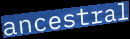
ancestral